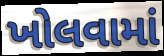
ખોલવામાં